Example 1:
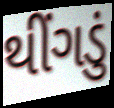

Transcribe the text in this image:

થીંગડું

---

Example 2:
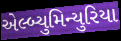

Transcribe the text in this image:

એલ્બ્યુમિન્યુરિયા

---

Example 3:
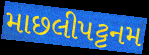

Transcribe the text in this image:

માછલીપટ્ટનમ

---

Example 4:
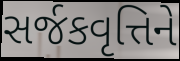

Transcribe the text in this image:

સર્જકવૃત્તિને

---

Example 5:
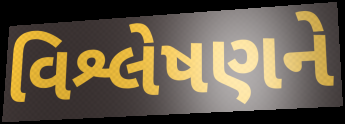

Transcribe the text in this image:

વિશ્લેષણને